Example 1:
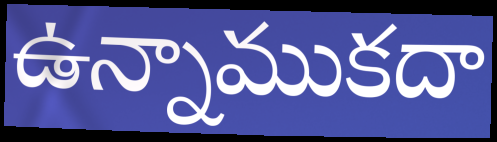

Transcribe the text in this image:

ఉన్నాముకదా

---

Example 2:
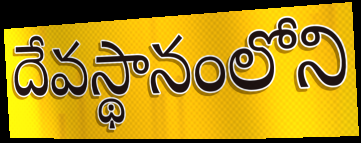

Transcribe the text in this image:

దేవస్థానంలోని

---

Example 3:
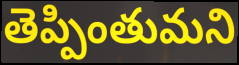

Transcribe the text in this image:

తెప్పింతుమని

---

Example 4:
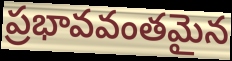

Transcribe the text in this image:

ప్రభావవంతమైన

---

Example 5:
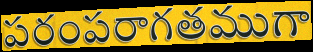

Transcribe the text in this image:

పరంపరాగతముగా